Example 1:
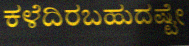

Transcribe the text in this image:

ಕಳೆದಿರಬಹುದಷ್ಟೇ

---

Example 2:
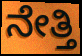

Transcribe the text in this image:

ನೇತ್ತಿ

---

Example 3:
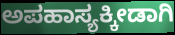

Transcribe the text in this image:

ಅಪಹಾಸ್ಯಕ್ಕೀಡಾಗಿ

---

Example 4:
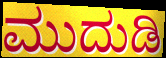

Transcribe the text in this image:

ಮುದುಡಿ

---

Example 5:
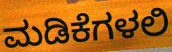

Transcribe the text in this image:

ಮಡಿಕೆಗಳಲಿ